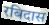
रबिदास